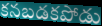
కనబడకపోడు